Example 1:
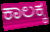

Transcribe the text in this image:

ಕಾಲಕ್ಕ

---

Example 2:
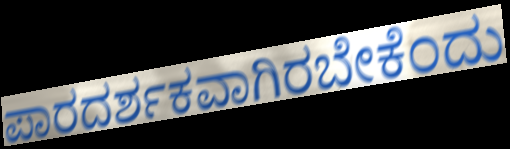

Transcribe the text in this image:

ಪಾರದರ್ಶಕವಾಗಿರಬೇಕೆಂದು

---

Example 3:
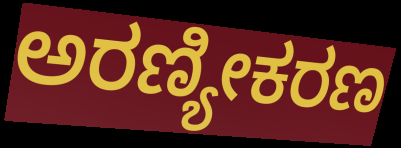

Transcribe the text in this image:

ಅರಣ್ಯೀಕರಣ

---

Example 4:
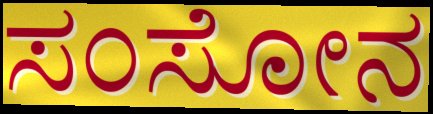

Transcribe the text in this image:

ಸಂಸೋನ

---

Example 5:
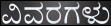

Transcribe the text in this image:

ವಿವರಗಳು